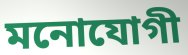
মনোযোগী